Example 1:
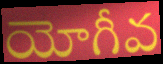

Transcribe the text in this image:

యోగీవ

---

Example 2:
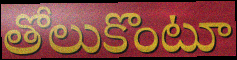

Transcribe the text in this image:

తోలుకొంటూ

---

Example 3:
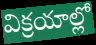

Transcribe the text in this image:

విక్రయాల్లో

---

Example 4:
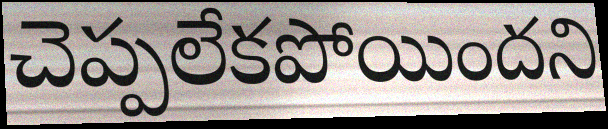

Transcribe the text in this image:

చెప్పలేకపోయిందని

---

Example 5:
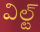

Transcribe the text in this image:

విల్ట్